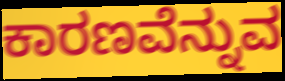
ಕಾರಣವೆನ್ನುವ